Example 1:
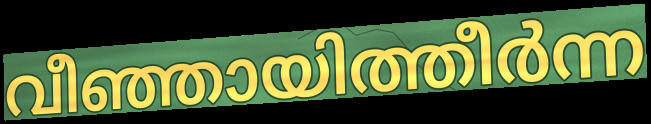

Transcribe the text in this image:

വീഞ്ഞായിത്തീർന്ന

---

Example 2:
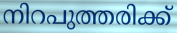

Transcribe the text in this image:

നിറപുത്തരിക്ക്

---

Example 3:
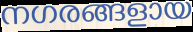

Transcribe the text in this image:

നഗരങ്ങളായ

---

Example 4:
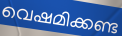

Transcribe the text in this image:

വെഷമിക്കണ്ട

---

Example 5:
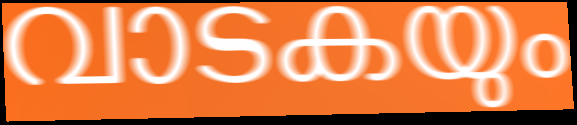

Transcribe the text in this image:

വാടകയും